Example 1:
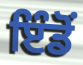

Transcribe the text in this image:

ਇੰਡੋਂ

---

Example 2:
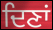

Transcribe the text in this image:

ਦਿਣਾਂ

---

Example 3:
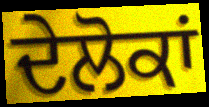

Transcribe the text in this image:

ਦੇਲੋਕਾਂ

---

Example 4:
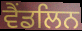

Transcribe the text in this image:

ਵੈਂਡਲਿਨ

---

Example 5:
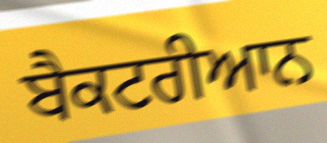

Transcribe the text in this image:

ਬੈਕਟਰੀਆਨ